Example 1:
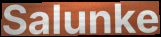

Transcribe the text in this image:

Salunke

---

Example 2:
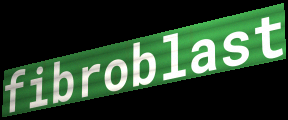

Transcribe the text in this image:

fibroblast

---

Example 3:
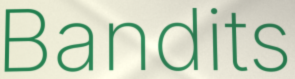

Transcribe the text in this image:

Bandits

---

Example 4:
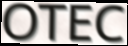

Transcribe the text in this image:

OTEC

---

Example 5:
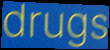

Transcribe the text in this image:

drugs